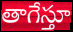
తాగేస్తూ